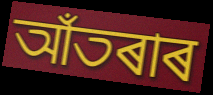
আঁতৰাৰ